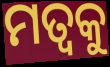
ମତ୍ୱକୁ